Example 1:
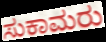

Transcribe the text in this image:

ಸುಕಾಮರು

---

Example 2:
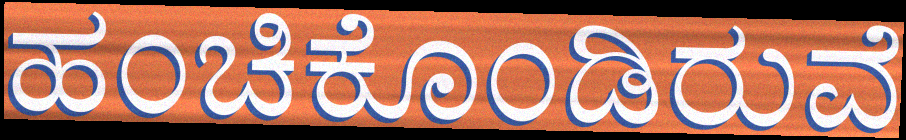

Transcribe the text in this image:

ಹಂಚಿಕೊಂಡಿರುವೆ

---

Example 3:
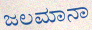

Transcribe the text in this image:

ಜಲಮಾನಾ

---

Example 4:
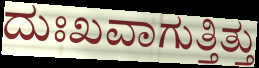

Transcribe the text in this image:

ದುಃಖವಾಗುತ್ತಿತ್ತು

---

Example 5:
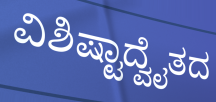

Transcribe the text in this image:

ವಿಶಿಷ್ಟಾದ್ವೈತದ